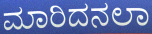
ಮಾರಿದನಲಾ